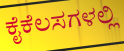
ಕೈಕೆಲಸಗಳಲ್ಲಿ